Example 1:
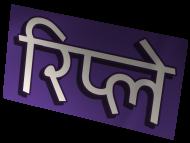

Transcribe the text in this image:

रिप्ले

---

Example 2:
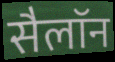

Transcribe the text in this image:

सैलॉन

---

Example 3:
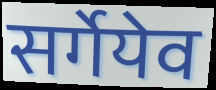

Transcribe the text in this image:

सर्गेयेव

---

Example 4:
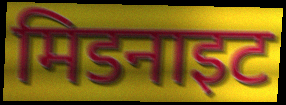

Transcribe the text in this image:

मिडनाइट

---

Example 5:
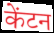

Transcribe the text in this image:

केंटन